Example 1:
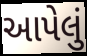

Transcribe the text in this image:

આપેલું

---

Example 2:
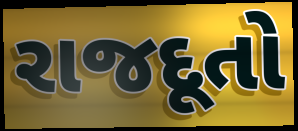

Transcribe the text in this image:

રાજદૂતો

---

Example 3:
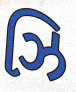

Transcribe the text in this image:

ઝિ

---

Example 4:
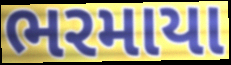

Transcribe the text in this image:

ભરમાયા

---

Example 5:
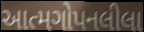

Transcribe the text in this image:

આત્મગોપનલીલા